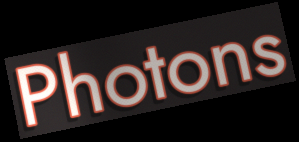
Photons